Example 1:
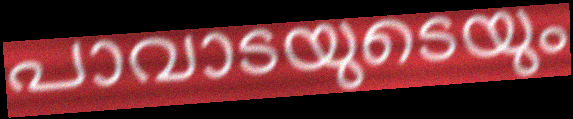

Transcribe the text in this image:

പാവാടയുടെയും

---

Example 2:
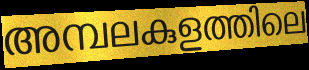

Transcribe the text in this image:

അമ്പലകുളത്തിലെ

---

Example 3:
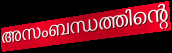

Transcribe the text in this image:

അസംബന്ധത്തിന്റെ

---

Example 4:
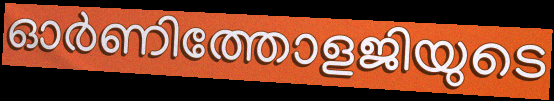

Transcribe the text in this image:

ഓർണിത്തോളജിയുടെ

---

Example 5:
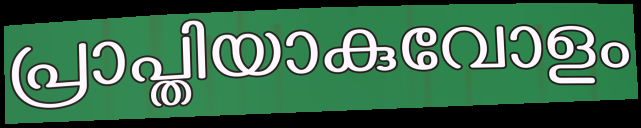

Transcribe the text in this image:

പ്രാപ്തിയാകുവോളം